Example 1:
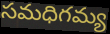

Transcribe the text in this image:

సమధిగమ్య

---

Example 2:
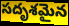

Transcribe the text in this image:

సదృశమైన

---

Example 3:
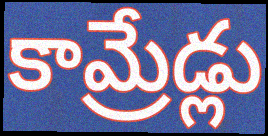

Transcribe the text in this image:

కామ్రేడ్లు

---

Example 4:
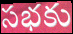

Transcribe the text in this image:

సభకు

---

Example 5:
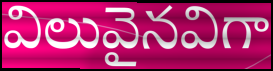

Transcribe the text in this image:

విలువైనవిగా